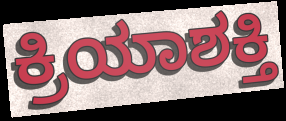
ಕ್ರಿಯಾಶಕ್ತಿ